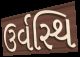
ઉર્વસ્થિ